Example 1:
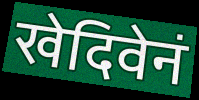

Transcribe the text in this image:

खेदिवेनं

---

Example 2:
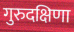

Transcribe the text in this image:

गुरुदक्षिणा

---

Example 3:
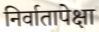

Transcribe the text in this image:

निर्वातापेक्षा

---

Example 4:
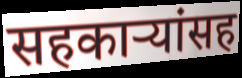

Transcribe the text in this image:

सहकाऱ्यांसह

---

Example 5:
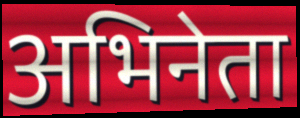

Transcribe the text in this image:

अभिनेता